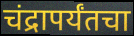
चंद्रापर्यंतचा